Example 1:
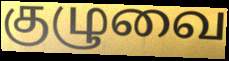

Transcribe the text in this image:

குழுவை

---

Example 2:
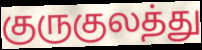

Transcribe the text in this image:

குருகுலத்து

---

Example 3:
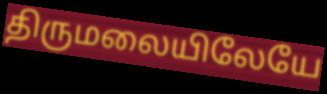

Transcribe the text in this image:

திருமலையிலேயே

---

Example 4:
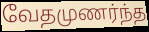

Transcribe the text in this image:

வேதமுணர்ந்த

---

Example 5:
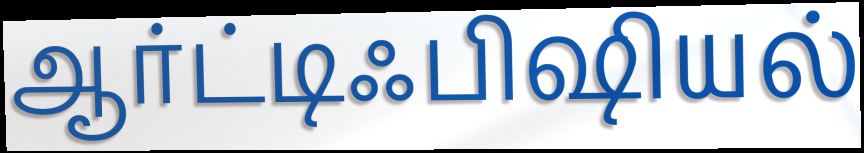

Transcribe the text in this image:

ஆர்ட்டிஃபிஷியல்